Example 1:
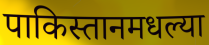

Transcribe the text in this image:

पाकिस्तानमधल्या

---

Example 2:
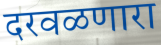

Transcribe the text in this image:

दरवळणारा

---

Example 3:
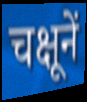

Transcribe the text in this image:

चक्षूनें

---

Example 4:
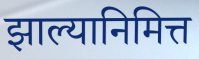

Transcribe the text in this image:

झाल्यानिमित्त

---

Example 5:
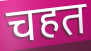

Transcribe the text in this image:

चहत